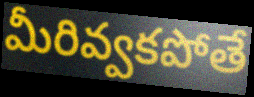
మీరివ్వకపోతే